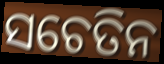
ସଚେତିନ